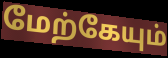
மேற்கேயும்